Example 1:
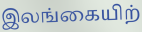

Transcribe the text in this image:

இலங்கையிற்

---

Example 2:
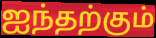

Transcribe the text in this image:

ஐந்தற்கும்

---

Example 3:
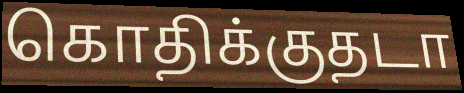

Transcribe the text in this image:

கொதிக்குதடா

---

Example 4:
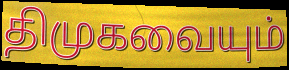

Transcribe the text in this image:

திமுகவையும்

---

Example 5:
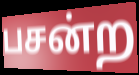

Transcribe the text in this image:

பசன்ற